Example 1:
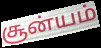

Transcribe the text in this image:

சூன்யம்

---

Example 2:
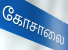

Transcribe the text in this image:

கோசாலை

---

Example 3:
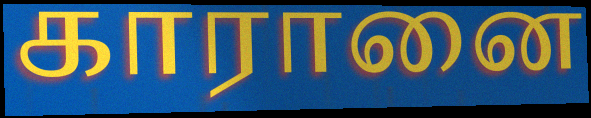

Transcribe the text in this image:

காரானை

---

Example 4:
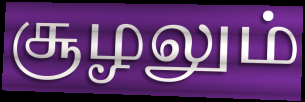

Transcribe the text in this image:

சூழலும்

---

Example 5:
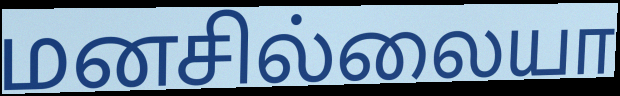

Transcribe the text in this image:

மனசில்லையா